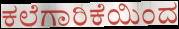
ಕಲೆಗಾರಿಕೆಯಿಂದ